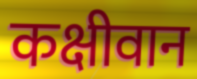
कक्षीवान